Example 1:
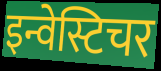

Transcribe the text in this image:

इन्वेस्टिचर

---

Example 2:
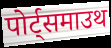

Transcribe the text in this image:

पोर्ट्समाउथ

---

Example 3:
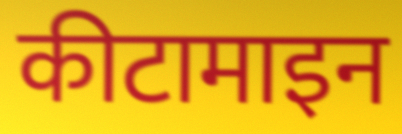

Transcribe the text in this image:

कीटामाइन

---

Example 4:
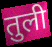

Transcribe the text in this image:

तुली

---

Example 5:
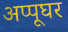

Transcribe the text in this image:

अप्पूघर